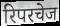
रिपरचेज